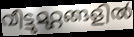
വീട്ടുമുറ്റങ്ങളിൽ